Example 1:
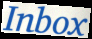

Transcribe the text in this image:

Inbox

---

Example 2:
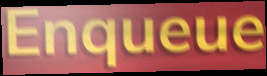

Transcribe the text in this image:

Enqueue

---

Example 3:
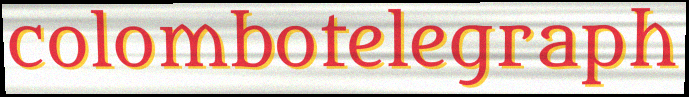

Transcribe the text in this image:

colombotelegraph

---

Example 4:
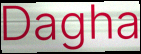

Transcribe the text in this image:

Dagha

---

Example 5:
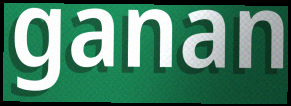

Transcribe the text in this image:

ganan